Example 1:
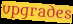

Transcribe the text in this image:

upgrades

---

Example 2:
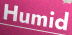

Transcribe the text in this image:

Humid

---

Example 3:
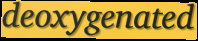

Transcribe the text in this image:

deoxygenated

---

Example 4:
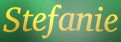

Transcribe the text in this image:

Stefanie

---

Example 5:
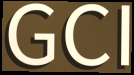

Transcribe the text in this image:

GCI